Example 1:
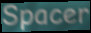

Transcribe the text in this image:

Spacer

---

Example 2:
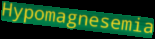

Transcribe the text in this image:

Hypomagnesemia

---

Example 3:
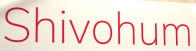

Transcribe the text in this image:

Shivohum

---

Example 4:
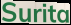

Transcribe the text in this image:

Surita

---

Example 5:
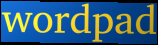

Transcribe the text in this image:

wordpad